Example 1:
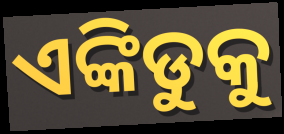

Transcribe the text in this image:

ଏଙ୍କିଡୁକୁ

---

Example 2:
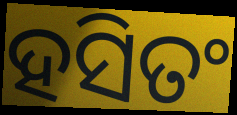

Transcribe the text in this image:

ହସିତଂ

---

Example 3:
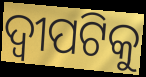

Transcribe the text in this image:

ଦ୍ୱୀପଟିକୁ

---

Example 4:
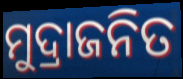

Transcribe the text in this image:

ମୁଦ୍ରାଜନିତ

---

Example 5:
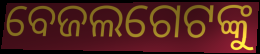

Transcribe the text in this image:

ବେଜଲଗେଟଙ୍କୁ